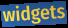
widgets